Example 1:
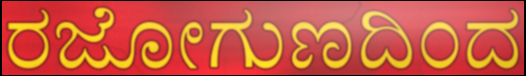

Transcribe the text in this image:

ರಜೋಗುಣದಿಂದ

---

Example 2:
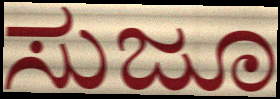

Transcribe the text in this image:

ಸುಜೂ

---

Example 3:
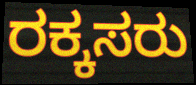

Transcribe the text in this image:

ರಕ್ಕಸರು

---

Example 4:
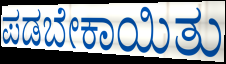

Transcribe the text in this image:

ಪಡಬೇಕಾಯಿತು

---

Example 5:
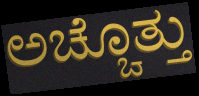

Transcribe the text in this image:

ಅಚ್ಚೊತ್ತು